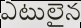
ఎటులైన